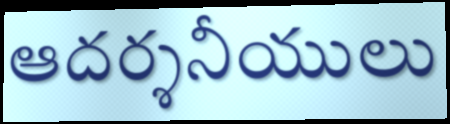
ఆదర్శనీయులు